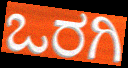
ಒರಗಿ